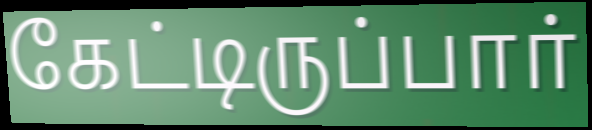
கேட்டிருப்பார்